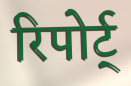
रिपोर्ट्